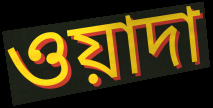
ওয়াদা